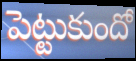
పెట్టుకుందో